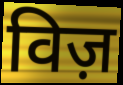
विज़